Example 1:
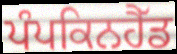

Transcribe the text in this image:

ਪੰਪਕਿਨਹੈੱਡ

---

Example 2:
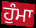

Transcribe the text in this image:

ਹੁੰਮਾ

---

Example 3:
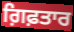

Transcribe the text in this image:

ਗ਼ਿਫ਼ਤਾਰ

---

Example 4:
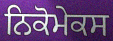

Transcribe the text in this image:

ਨਿਕੋਮੇਕਸ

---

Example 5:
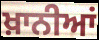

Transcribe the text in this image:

ਖ਼ਾਨੀਆਂ